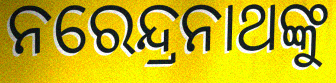
ନରେନ୍ଦ୍ରନାଥଙ୍କୁ